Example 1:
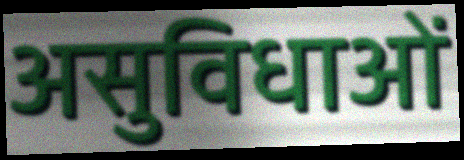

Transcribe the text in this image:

असुविधाओं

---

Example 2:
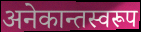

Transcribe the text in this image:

अनेकान्तस्वरूप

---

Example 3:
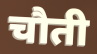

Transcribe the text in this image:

चौती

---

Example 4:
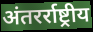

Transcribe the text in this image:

अंतरर्राष्ट्रीय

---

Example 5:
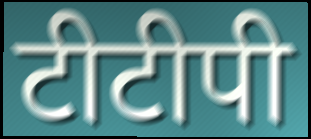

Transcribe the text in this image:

टीटीपी